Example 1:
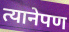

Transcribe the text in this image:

त्यानेपण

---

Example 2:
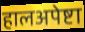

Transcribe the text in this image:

हालअपेष्टा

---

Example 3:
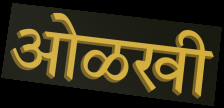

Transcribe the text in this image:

ओळखी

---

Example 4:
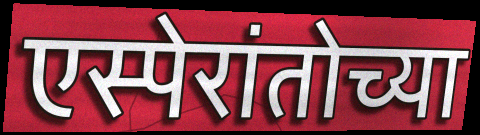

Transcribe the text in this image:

एस्पेरांतोच्या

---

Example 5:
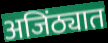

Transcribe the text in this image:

अजिंठ्यात